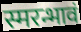
स्मरन्भावं